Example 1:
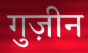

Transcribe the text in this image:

गुज़ीन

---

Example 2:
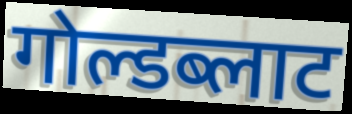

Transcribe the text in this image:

गोल्डब्लाट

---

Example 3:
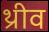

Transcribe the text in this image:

थ्रीव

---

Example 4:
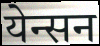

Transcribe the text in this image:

येन्सन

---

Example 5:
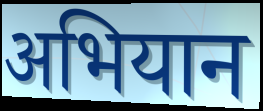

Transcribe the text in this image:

अभियान